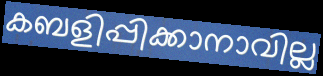
കബളിപ്പിക്കാനാവില്ല